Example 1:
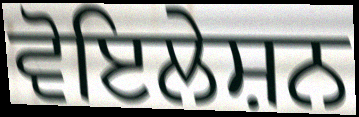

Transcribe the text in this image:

ਵੋਇਲੇਸ਼ਨ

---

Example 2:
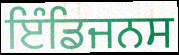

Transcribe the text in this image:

ਇੰਡਿਜਨਸ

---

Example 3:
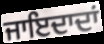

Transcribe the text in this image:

ਜਾਇਦਾਦਾਂ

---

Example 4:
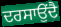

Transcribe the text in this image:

ਦਰਸਾਉਂਦੈ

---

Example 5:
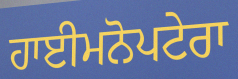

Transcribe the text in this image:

ਹਾਈਮਨੋਪਟੇਰਾ